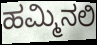
ಹಮ್ಮಿನಲಿ